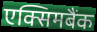
एक्सिमबैंक